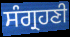
ਸੰਗ੍ਰਹਣੀ